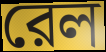
রেল